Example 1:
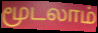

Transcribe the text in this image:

மூடலாம்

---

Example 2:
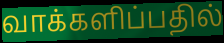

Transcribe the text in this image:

வாக்களிப்பதில்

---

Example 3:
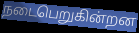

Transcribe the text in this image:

நடைபெறுகின்றன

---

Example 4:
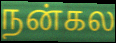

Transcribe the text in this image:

நன்கல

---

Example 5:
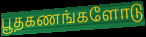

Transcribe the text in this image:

பூதகணங்களோடு